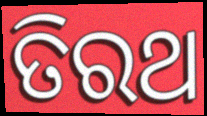
ତିରଥ